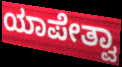
ಯಾಪೇತ್ವಾ